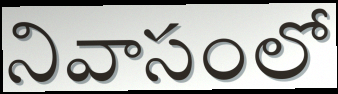
నివాసంలో